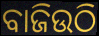
ବାଜିଉଠି